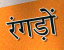
रंगड़ों